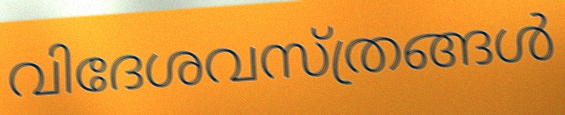
വിദേശവസ്ത്രങ്ങൾ